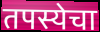
तपस्येचा